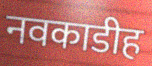
नवकाडीह